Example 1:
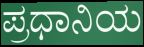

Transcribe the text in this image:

ಪ್ರಧಾನಿಯ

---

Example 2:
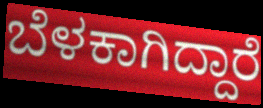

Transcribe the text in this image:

ಬೆಳಕಾಗಿದ್ದಾರೆ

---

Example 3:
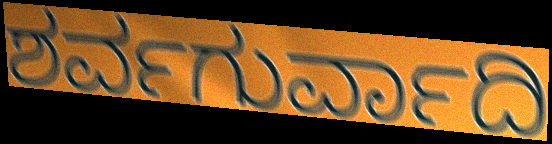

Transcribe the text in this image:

ಶರ್ವಗುರ್ವಾದಿ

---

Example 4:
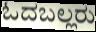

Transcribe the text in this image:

ಓದಬಲ್ಲರು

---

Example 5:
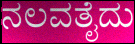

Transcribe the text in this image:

ನಲವತೈದು